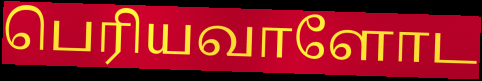
பெரியவாளோட